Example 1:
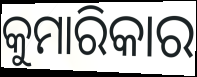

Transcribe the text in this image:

କୁମାରିକାର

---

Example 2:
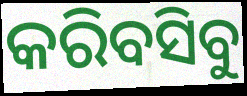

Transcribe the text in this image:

କରିବସିବୁ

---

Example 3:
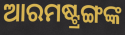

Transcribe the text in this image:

ଆରମଷ୍ଟ୍ରଙ୍ଗଙ୍କ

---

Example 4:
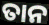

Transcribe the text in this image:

ତାନ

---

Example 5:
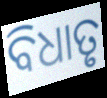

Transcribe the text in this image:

ବିଧାତୃ